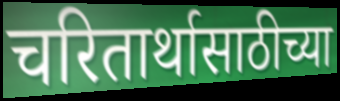
चरितार्थासाठीच्या